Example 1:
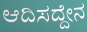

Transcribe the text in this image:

ಆದಿಸದ್ದೇನ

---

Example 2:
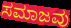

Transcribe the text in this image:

ಸಮಾಜವು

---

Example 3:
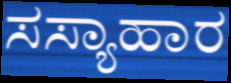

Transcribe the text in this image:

ಸಸ್ಯಾಹಾರ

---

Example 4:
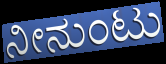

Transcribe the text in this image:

ನೀನುಂಟು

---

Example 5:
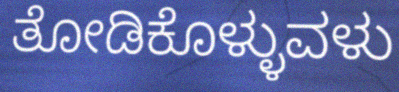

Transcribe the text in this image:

ತೋಡಿಕೊಳ್ಳುವಳು